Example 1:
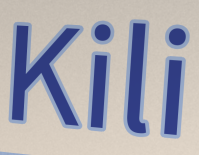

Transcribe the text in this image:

Kili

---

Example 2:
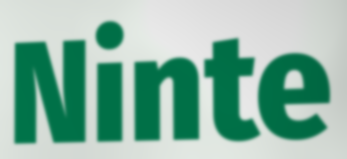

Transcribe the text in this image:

Ninte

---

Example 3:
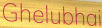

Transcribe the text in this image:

Ghelubhai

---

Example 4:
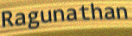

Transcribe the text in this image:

Ragunathan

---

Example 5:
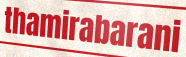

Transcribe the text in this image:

thamirabarani